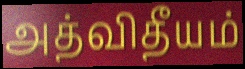
அத்விதீயம்